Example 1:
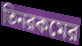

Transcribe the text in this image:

তিনরকমের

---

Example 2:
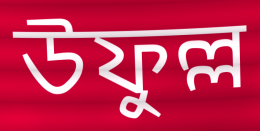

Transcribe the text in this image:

উফুল্ল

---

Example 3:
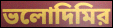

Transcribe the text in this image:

ভলোদিমির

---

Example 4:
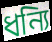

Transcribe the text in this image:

ধন্যি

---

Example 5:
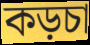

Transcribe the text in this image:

কড়চা